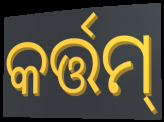
କର୍ତ୍ତମ୍